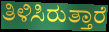
ತಿಳಿಸಿರುತ್ತಾರೆ